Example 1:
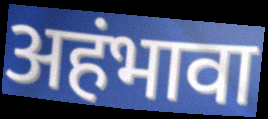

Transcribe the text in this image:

अहंभावा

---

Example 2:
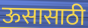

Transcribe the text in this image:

ऊसासाठी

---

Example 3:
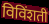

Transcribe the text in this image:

विविंशती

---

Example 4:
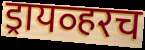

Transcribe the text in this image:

ड्रायव्हरच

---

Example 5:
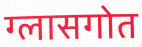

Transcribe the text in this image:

ग्लासगोत